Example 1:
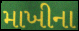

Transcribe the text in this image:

માખીના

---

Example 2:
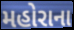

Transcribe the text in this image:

મહોરાના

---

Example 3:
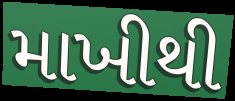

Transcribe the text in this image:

માખીથી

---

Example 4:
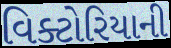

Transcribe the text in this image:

વિક્ટોરિયાની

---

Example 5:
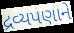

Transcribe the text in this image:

દ્રવ્યપણાને